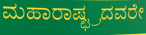
ಮಹಾರಾಷ್ಟ್ರದವರೇ